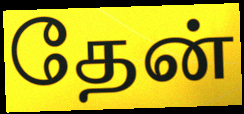
தேன்